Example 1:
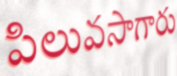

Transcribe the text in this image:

పిలువసాగారు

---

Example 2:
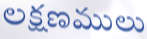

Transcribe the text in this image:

లక్షణములు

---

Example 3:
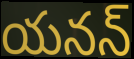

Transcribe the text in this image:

యనన్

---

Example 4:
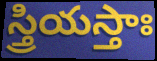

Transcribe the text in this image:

స్త్రియస్తాః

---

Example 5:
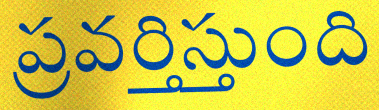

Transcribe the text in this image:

ప్రవర్తిస్తుంది